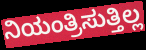
ನಿಯಂತ್ರಿಸುತ್ತಿಲ್ಲ